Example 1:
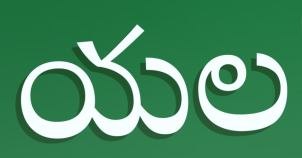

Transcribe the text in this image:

యల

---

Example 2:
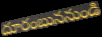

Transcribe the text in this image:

దూరంబుననుండి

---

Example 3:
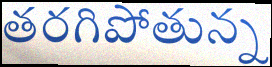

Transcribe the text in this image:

తరగిపోతున్న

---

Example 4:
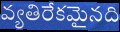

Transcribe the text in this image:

వ్యతిరేకమైనది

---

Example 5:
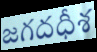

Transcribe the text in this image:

జగదధీశ